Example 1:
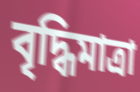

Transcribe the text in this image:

বৃদ্ধিমাত্রা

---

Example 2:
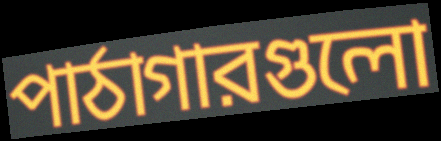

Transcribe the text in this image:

পাঠাগারগুলো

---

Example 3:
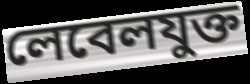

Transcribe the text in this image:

লেবেলযুক্ত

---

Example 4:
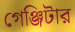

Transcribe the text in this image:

গেঞ্জিটার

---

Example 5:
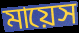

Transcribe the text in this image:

মায়েস